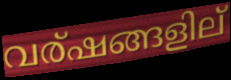
വര്ഷങ്ങളില്